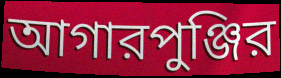
আগারপুঞ্জির